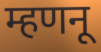
म्हणनू